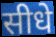
सीधे